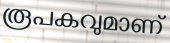
രൂപകവുമാണ്